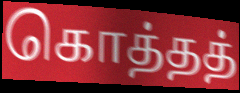
கொத்தத்